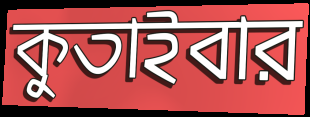
কুতাইবার